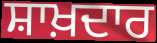
ਸ਼ਾਖ਼ਦਾਰ